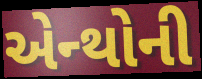
એન્થોની